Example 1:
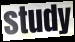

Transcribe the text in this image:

study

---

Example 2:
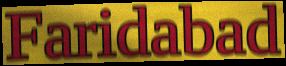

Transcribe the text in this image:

Faridabad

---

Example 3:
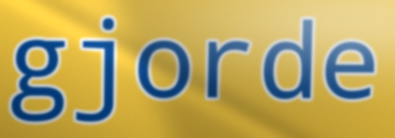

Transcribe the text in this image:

gjorde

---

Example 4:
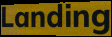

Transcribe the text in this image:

Landing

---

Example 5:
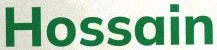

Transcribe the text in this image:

Hossain